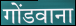
गोंडवाना